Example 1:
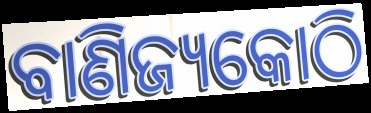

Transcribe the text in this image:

ବାଣିଜ୍ୟକୋଠି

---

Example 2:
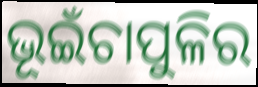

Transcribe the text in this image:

ଭୂଇଁଚାପୁଳିର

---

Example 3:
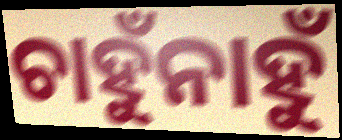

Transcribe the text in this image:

ଚାହୁଁନାହୁଁ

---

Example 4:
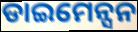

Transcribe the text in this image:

ଡାଇମେନ୍ସନ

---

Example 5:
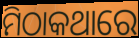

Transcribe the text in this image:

ମିଠାକଥାରେ